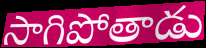
సాగిపోతాడు